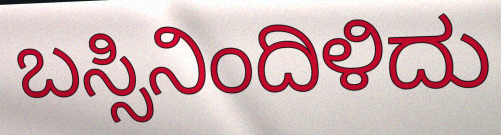
ಬಸ್ಸಿನಿಂದಿಳಿದು